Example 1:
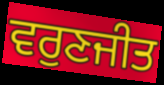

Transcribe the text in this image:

ਵਰੁਣਜੀਤ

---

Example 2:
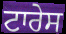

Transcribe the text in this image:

ਟਾਰੇਸ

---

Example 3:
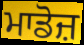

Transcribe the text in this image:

ਮਾਡੋਜ਼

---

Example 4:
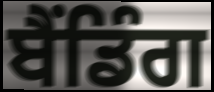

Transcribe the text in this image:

ਬੈਂਡਿੰਗ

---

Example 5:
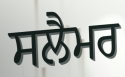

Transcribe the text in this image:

ਸਲੈਮਰ